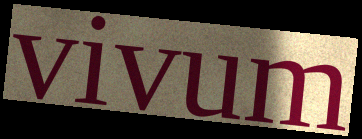
vivum